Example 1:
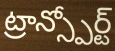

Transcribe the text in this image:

ట్రాన్స్పోర్ట్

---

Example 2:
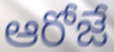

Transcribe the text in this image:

ఆరోజే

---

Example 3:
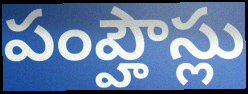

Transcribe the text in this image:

పంప్హౌస్లు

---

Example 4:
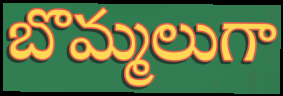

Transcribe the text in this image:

బొమ్మలుగా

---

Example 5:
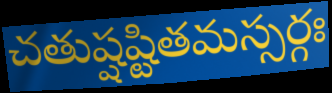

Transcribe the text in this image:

చతుష్షష్టితమస్సర్గః